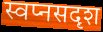
स्वप्नसदृश